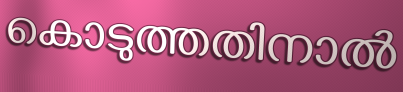
കൊടുത്തതിനാൽ